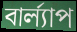
বার্ল্যাপ